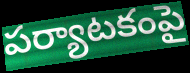
పర్యాటకంపై